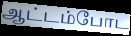
ஆட்டம்போட